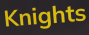
Knights